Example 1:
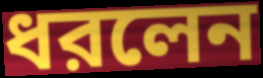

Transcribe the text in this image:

ধরলেন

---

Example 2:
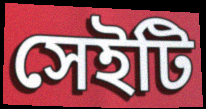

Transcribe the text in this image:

সেইটি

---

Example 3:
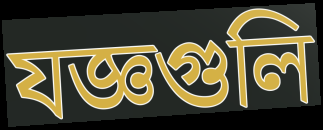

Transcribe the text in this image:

যজ্ঞগুলি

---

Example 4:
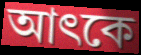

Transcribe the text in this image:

আৎকে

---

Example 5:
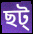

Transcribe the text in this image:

ছট্